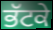
ਭੱਟਕੇ